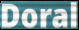
Doral